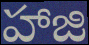
హాజి